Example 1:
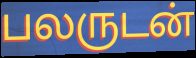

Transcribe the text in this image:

பலருடன்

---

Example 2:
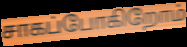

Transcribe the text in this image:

சாகப்போகிறோம்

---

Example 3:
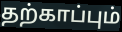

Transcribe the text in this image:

தற்காப்பும்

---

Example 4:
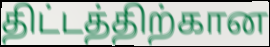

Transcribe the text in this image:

திட்டத்திற்கான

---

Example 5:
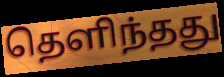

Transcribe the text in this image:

தெளிந்தது